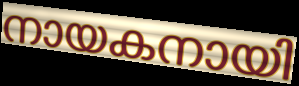
നായകനായി